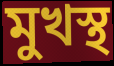
মুখস্থ